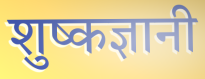
शुष्कज्ञानी